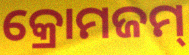
କ୍ରୋମଜମ୍